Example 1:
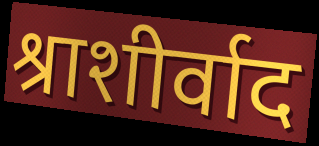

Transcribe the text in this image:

श्राशीर्वाद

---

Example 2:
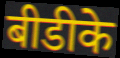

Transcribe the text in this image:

बीडीके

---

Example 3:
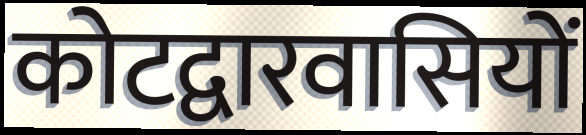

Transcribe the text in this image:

कोटद्वारवासियों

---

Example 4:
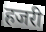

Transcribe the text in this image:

हजरी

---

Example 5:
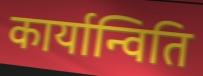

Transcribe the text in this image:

कार्यान्विति